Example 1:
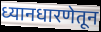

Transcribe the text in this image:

ध्यानधारणेतून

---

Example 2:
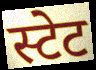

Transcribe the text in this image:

स्टेट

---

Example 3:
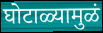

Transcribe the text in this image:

घोटाळ्यामुळं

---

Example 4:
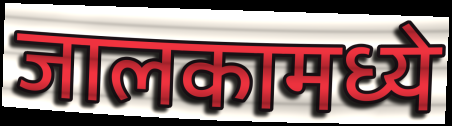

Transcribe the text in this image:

जालकामध्ये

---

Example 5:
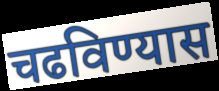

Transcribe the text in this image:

चढविण्यास